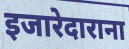
इजारेदाराना